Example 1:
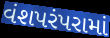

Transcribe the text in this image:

વંશપરંપરામાં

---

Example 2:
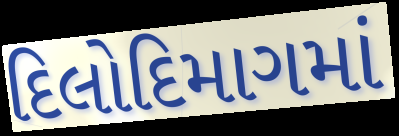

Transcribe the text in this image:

દિલોદિમાગમાં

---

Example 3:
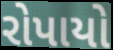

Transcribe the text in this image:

રોપાયો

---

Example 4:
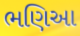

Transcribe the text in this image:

ભણિઆ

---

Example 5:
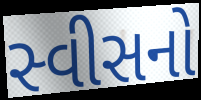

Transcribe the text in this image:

સ્વીસનો